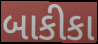
બાકીકા